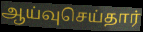
ஆய்வுசெய்தார்